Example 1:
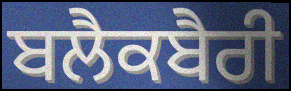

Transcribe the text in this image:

ਬਲੈਕਬੈਰੀ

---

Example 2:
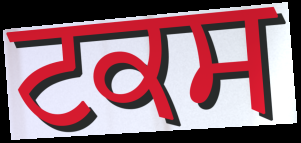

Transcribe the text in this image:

ਟਕਸ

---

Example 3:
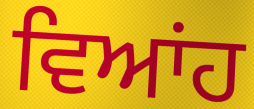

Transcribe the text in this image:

ਵਿਆਂਹ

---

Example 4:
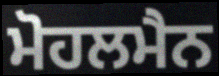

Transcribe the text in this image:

ਮੋਹਲਮੈਨ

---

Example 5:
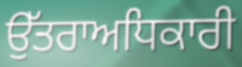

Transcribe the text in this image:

ਉੱਤਰਾਅਧਿਕਾਰੀ